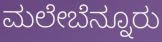
ಮಲೇಬೆನ್ನೂರು